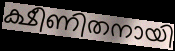
ക്ഷീണിതനായി